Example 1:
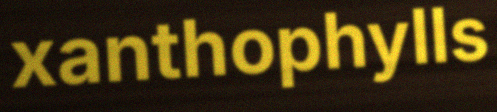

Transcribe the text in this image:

xanthophylls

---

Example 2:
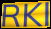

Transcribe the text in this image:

RKI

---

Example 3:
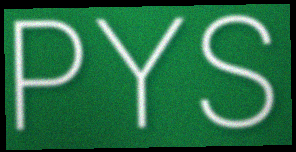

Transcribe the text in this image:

PYS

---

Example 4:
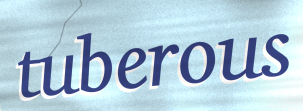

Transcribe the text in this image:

tuberous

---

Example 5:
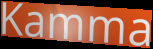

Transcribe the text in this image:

Kamma